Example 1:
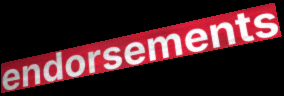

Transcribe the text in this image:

endorsements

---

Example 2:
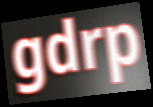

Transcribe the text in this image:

gdrp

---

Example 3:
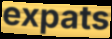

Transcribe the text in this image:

expats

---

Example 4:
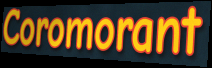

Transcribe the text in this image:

Coromorant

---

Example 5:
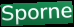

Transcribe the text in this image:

Sporne